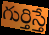
గుర్తిస్తే